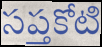
సప్తకోటి